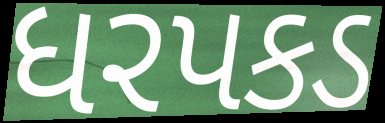
ધરપકડ